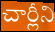
చార్లీని